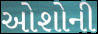
ઓશોની